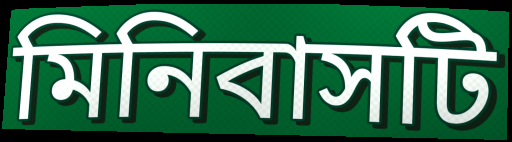
মিনিবাসটি